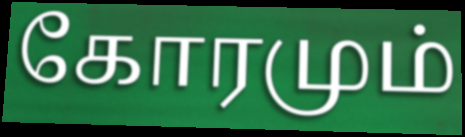
கோரமும்